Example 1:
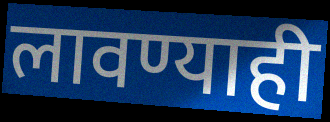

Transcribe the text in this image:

लावण्याही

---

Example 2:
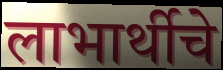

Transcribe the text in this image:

लाभार्थीचे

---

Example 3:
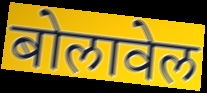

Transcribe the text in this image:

बोलावेल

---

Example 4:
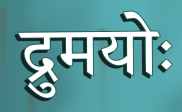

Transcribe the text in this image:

द्रुमयोः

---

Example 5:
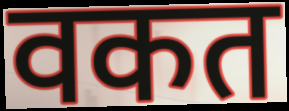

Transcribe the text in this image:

वकत